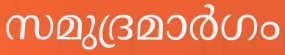
സമുദ്രമാർഗം